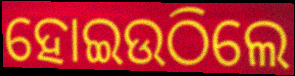
ହୋଇଉଠିଲେ